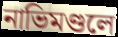
নাভিমণ্ডলে